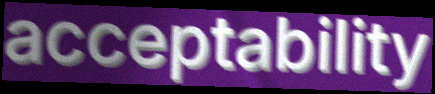
acceptability